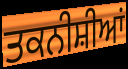
ਤਕਨੀਸ਼ੀਆਂ